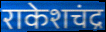
राकेशचंद्र